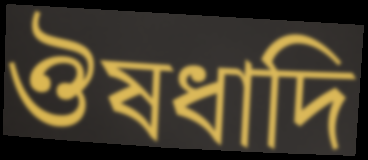
ঔষধাদি